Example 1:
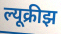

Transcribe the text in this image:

ल्यूक्रीझ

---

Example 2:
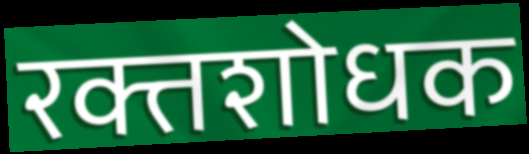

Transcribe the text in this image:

रक्तशोधक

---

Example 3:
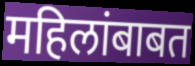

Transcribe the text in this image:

महिलांबाबत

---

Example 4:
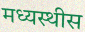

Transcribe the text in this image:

मध्यस्थीस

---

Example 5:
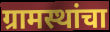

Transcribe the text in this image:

ग्रामस्थांचा